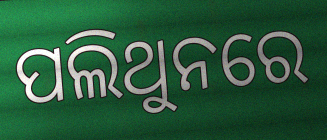
ପଲିଥୁନରେ